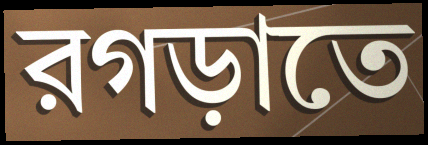
রগড়াতে